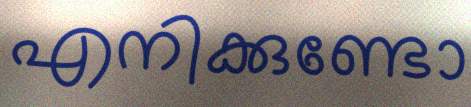
എനിക്കുണ്ടോ